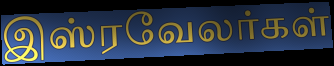
இஸ்ரவேலர்கள்